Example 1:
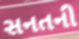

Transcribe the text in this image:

સનતની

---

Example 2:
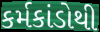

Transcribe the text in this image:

કર્મકાંડોથી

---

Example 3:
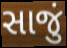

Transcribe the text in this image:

સાજું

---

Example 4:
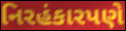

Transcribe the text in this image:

નિરહંકારપણે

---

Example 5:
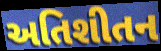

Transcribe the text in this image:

અતિશીતન